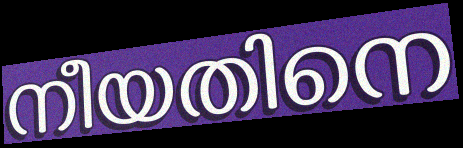
നീയതിനെ